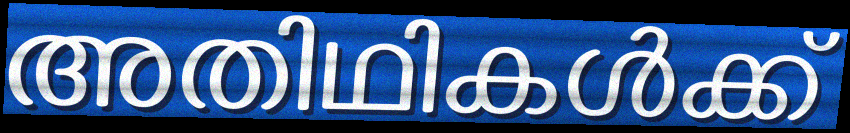
അതിഥികൾക്ക്